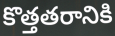
కొత్తతరానికి